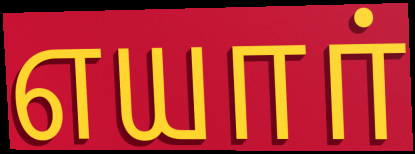
எயார்